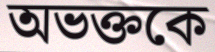
অভক্তকে